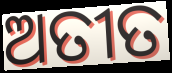
ଅତୀତ